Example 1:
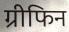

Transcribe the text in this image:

ग्रीफिन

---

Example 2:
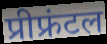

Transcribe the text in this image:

प्रीफ्रंटल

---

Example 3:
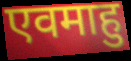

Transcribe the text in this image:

एवमाहु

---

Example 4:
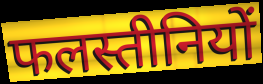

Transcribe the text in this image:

फलस्तीनियों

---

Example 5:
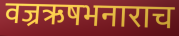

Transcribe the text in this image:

वज्रऋषभनाराच